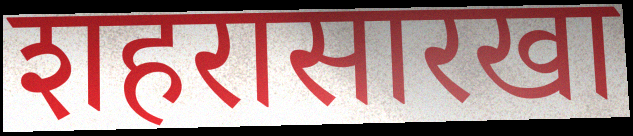
शहरासारखा